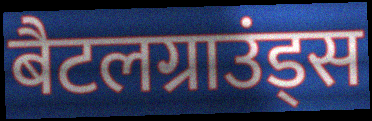
बैटलग्राउंड्स